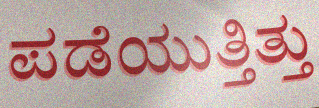
ಪಡೆಯುತ್ತಿತ್ತು